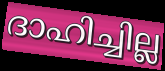
ദാഹിച്ചില്ല